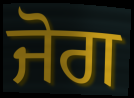
ਜੋਗ